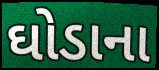
ઘોડાના